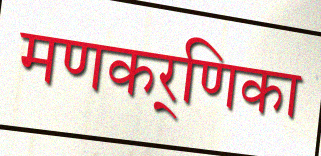
मणकर्णिका